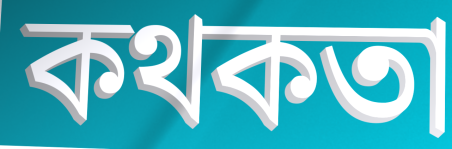
কথকতা